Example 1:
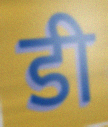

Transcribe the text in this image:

डी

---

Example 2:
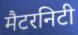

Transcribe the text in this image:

मैटरनिटी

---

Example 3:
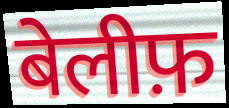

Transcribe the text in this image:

बेलीफ़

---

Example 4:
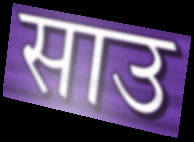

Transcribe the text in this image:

साउ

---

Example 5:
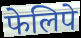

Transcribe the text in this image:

फेलिपे